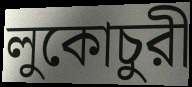
লুকোচুরী